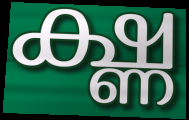
ക്ഷ്ണ